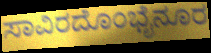
ಸಾವಿರದೊಂಭೈನೂರ